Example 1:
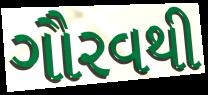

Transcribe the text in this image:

ગૌરવથી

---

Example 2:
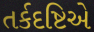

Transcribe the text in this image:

તર્કદષ્ટિએ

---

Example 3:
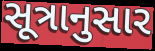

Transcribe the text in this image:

સૂત્રાનુસાર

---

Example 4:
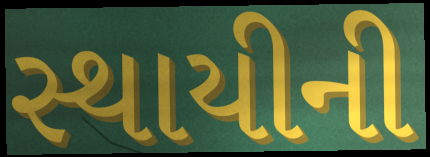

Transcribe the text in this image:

સ્થાયીની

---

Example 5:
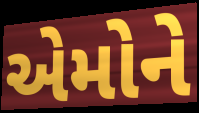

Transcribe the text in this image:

એમોને